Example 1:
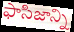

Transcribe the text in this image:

ఫాసిజాన్ని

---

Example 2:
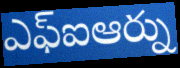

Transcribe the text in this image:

ఎఫ్ఐఆర్ను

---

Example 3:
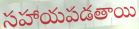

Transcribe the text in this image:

సహాయపడతాయి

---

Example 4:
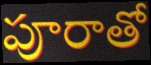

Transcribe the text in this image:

పూరాతో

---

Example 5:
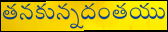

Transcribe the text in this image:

తనకున్నదంతయు